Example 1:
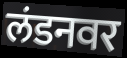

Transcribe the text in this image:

लंडनवर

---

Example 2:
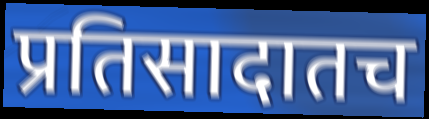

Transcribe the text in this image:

प्रतिसादातच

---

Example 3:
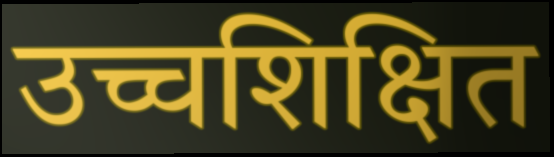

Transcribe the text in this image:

उच्चशिक्षित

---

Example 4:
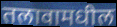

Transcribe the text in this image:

तलावामधील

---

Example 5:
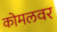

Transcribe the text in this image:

कोमलवर